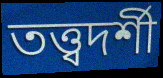
তত্ত্বদর্শী